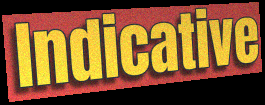
Indicative